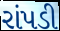
રાંપડી